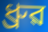
ধ্ৰুৱ